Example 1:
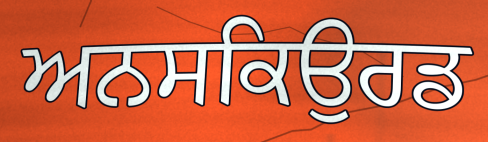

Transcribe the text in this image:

ਅਨਸਕਿਉਰਡ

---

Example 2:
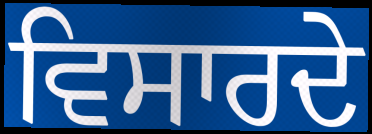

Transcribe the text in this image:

ਵਿਸਾਰਦੇ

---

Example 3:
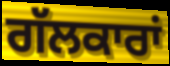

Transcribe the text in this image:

ਗੱਲਕਾਰਾਂ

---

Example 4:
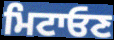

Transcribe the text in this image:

ਮਿਟਾਓਣ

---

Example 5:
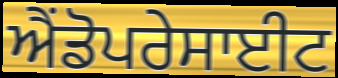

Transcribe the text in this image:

ਐਂਡੋਪਰੇਸਾਈਟ